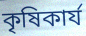
কৃষিকাৰ্য